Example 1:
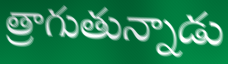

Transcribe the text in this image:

త్రాగుతున్నాడు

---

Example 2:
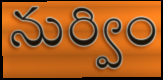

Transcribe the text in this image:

నుర్విం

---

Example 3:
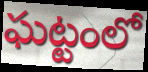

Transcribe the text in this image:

ఘట్టంలో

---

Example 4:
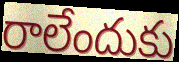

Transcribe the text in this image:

రాలేందుకు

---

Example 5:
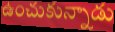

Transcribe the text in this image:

ఉంచుకున్నాడు